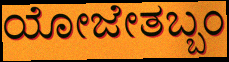
ಯೋಜೇತಬ್ಬಂ